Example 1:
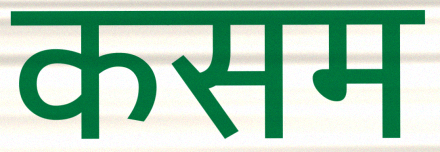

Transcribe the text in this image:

कसम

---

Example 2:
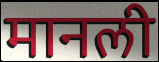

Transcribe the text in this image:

मानली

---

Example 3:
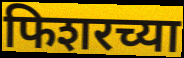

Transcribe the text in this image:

फिशरच्या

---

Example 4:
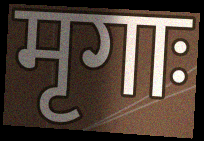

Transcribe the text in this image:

मृगाः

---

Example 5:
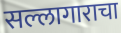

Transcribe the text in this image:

सल्लागाराचा